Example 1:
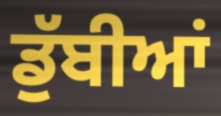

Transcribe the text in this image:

ਡੁੱਬੀਆਂ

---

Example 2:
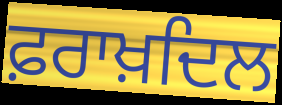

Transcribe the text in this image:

ਫ਼ਰਾਖ਼ਦਿਲ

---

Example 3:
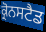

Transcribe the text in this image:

ਕ੍ਰੋਨਸਟੈਡ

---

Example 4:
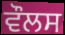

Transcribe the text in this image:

ਵੌਲਸ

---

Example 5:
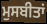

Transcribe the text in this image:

ਮੁਸਬੀਤਾਂ